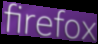
firefox